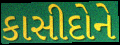
કાસીદોને